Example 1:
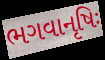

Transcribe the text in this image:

ભગવાનૃષિઃ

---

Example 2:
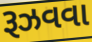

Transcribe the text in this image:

રૂઝવવા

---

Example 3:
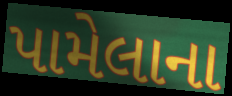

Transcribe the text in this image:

પામેલાના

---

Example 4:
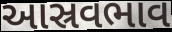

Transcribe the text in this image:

આસ્રવભાવ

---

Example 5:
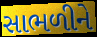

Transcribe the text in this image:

સાભળીને